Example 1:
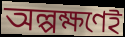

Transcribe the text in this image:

অল্পক্ষণেই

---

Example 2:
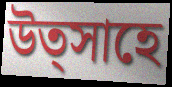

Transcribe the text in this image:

উত্সাহে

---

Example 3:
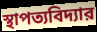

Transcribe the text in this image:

স্থাপত্যবিদ্যার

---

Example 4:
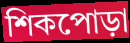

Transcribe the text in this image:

শিকপোড়া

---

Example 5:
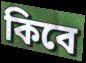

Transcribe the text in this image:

কিবে